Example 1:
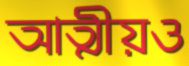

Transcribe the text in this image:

আত্মীয়ও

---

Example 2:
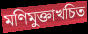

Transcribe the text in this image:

মণিমুক্তাখচিত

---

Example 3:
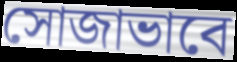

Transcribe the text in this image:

সোজাভাবে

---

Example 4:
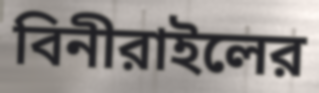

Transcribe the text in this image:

বিনীরাইলের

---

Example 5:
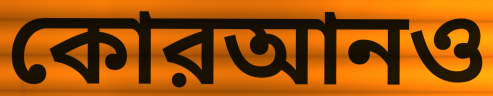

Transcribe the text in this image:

কোরআনও